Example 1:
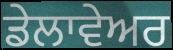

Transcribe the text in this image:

ਡੇਲਾਵੇਅਰ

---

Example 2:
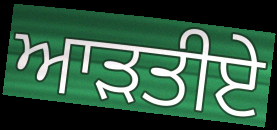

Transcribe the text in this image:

ਆੜਤੀਏ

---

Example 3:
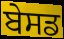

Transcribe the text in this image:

ਬੇਸਡ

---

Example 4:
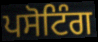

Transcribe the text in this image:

ਪਸੋਟਿੰਗ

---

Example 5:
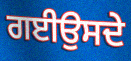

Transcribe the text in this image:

ਗਈਉਸਦੇ